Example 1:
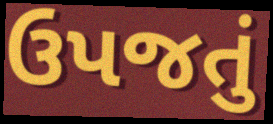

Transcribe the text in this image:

ઉપજતું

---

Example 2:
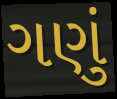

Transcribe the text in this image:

ગણું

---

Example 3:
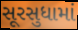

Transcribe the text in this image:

સૂરસુધામાં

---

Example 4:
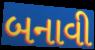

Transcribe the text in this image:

બનાવી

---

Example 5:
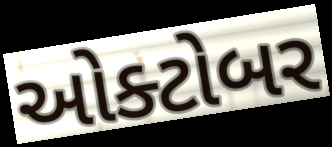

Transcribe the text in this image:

ઓક્ટોબર